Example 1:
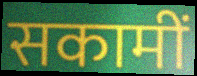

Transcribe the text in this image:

सकामीं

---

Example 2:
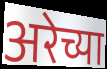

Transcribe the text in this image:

अरेच्या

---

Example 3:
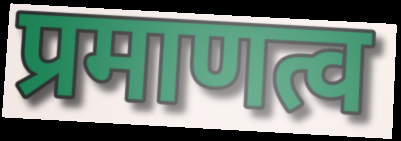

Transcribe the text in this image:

प्रमाणत्व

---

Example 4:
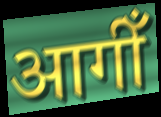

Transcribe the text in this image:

आगीँ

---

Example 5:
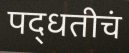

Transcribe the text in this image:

पद्धतीचं